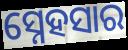
ସ୍ନେହସାର